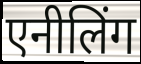
एनीलिंग